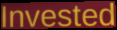
Invested